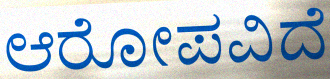
ಆರೋಪವಿದೆ